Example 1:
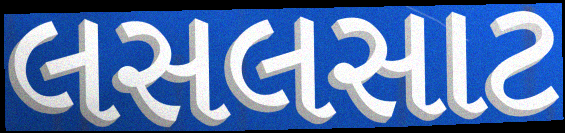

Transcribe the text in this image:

લસલસાટ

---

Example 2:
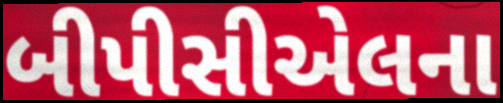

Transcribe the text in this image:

બીપીસીએલના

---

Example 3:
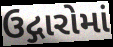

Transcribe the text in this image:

ઉદ્ગારોમાં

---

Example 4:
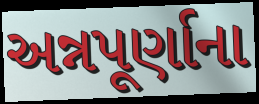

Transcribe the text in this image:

અન્નપૂર્ણાના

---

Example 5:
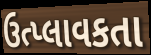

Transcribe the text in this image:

ઉત્પ્લાવકતા